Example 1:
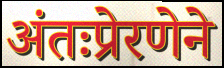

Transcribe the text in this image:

अंतःप्रेरणेने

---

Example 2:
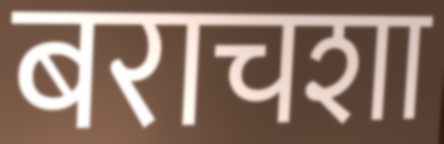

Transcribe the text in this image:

बराचशा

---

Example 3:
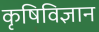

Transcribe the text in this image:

कृषिविज्ञान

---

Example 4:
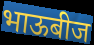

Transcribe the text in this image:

भाऊबीज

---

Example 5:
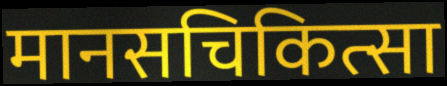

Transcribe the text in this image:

मानसचिकित्सा